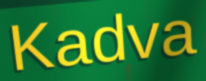
Kadva